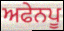
ਅਫੇਨਪੂ